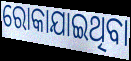
ରୋକାଯାଇଥିବା